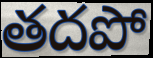
తదపో